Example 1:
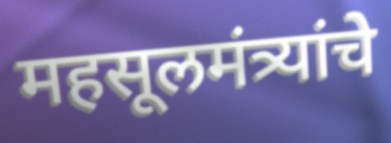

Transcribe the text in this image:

महसूलमंत्र्यांचे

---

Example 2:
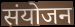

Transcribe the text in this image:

संयोजन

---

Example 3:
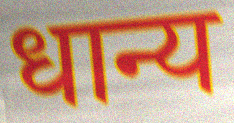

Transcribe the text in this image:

धान्य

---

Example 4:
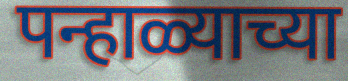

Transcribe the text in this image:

पन्हाळ्याच्या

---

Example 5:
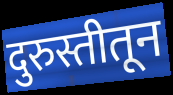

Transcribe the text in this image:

दुरुस्तीतून